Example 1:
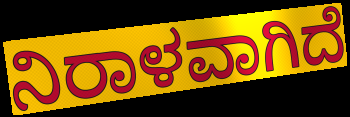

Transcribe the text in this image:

ನಿರಾಳವಾಗಿದೆ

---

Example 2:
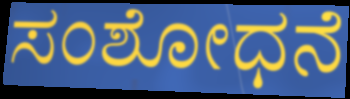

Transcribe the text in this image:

ಸಂಶೋಧನೆ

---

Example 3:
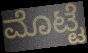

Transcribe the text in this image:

ಮೊಟ್ಟೆ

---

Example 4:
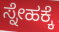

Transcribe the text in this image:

ಸ್ನೇಹಕ್ಕೆ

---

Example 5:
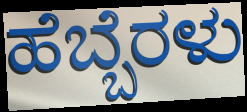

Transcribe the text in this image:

ಹೆಬ್ಬೆರಳು